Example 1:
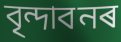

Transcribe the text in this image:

বৃন্দাবনৰ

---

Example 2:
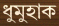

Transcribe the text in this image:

ধুমুহাক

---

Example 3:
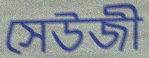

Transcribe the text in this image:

সেউজী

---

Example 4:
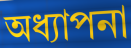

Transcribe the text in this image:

অধ্যাপনা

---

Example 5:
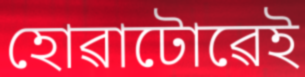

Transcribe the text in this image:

হোৱাটোৱেই